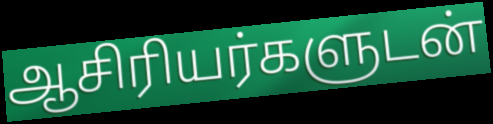
ஆசிரியர்களுடன்